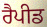
ਰੈਪੀਡ